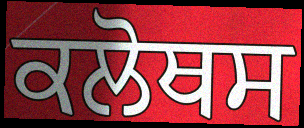
ਕਲੋਥਸ